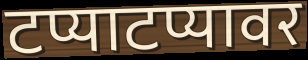
टप्याटप्यावर